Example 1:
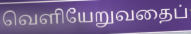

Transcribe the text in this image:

வெளியேறுவதைப்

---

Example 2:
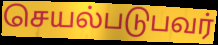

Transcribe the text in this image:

செயல்படுபவர்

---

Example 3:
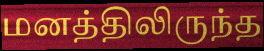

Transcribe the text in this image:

மனத்திலிருந்த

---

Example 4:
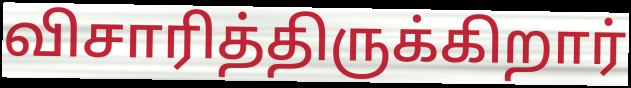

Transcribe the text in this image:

விசாரித்திருக்கிறார்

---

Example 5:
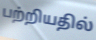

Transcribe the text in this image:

பற்றியதில்